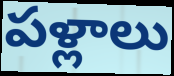
పళ్లాలు